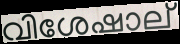
വിശേഷാല്